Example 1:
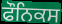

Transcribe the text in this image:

ਫੌਨਿਕਸ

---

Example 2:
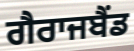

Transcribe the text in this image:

ਗੈਰਾਜਬੈਂਡ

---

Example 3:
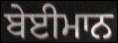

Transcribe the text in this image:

ਬੇਈਮਾਨ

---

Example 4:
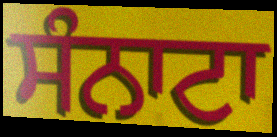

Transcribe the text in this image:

ਸੰਨਾਟਾ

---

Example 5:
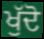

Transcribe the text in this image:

ਖੁੱਦੋ